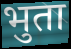
भुता